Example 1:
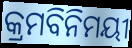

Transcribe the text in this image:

କ୍ରମବିନିମୟୀ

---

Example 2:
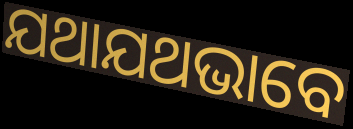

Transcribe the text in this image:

ଯଥାଯଥଭାବେ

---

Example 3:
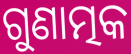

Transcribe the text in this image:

ଗୁଣାତ୍ମକ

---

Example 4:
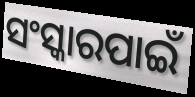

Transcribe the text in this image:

ସଂସ୍କାରପାଇଁ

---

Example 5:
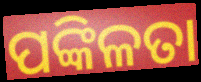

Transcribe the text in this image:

ପଙ୍କିଳତା